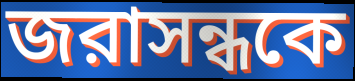
জরাসন্ধকে